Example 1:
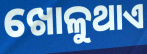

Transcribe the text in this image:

ଖୋଳୁଥାଏ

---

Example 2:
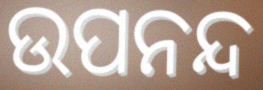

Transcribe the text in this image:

ଉପନନ୍ଦ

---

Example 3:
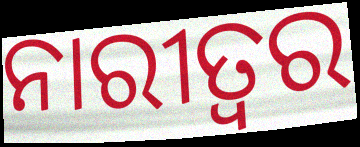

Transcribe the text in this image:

ନାରୀତ୍ୱର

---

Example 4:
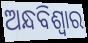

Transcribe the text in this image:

ଅନ୍ଧବିଶ୍ୱାର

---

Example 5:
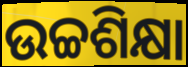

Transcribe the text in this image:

ଉଚ୍ଚଶିକ୍ଷା